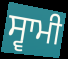
ਸ੍ਵਾਮੀ